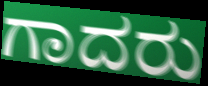
ಗಾದರು